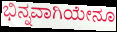
ಭಿನ್ನವಾಗಿಯೇನೂ